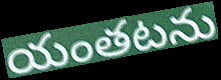
యంతటను